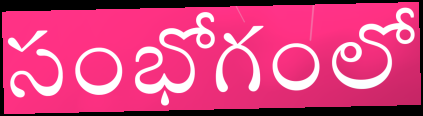
సంభోగంలో